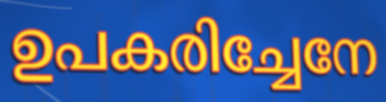
ഉപകരിച്ചേനേ